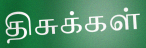
திசுக்கள்